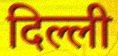
दिल्ली